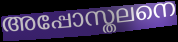
അപ്പോസ്തലനെ